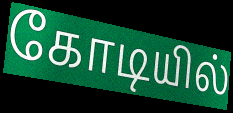
கோடியில்